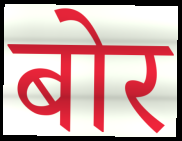
बोर